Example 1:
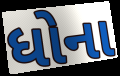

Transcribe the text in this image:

ધોના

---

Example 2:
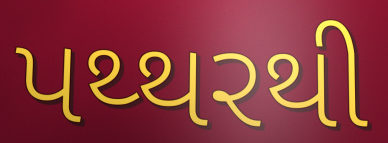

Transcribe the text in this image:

પથ્થરથી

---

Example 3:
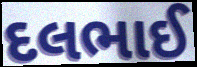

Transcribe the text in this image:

દલભાઈ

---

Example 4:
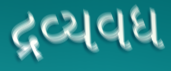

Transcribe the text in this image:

દ્રવ્યવધ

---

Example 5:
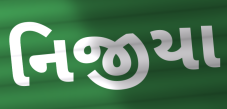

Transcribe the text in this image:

નિજીયા